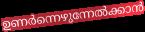
ഉണർന്നെഴുന്നേൽക്കാൻ